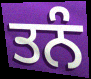
ਤਨੰ